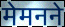
मेमनने